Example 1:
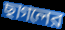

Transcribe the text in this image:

ছাগলের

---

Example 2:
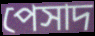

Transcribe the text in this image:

পেসাদ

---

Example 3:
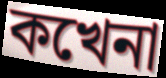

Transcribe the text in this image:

কখেনা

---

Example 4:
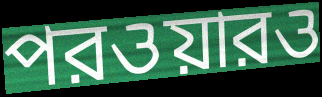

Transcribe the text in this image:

পরওয়ারও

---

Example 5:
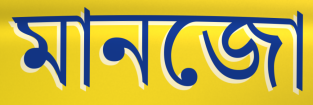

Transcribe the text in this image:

মানজো